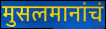
मुसलमानांचं